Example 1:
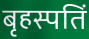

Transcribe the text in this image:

बृहस्पतिं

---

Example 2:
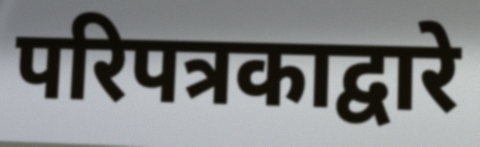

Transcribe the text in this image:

परिपत्रकाद्वारे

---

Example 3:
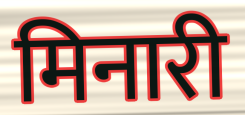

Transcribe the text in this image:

मिनारी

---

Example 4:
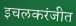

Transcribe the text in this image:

इचलकरंजीत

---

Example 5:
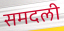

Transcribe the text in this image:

समदली